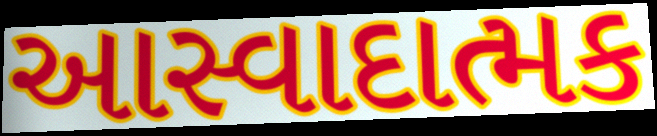
આસ્વાદાત્મક